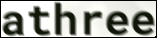
athree